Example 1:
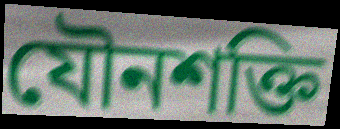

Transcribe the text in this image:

যৌনশক্তি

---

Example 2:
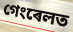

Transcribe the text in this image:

গেংৰেলত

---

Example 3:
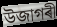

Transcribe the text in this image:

উজাগৰী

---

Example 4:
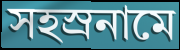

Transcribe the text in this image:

সহস্ৰনামে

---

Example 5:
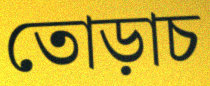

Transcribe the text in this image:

তোড়াচ